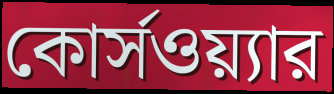
কোর্সওয়্যার